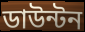
ডাউন্টন